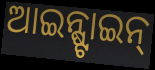
ଆଇନ୍ଷ୍ଟାଇନ୍